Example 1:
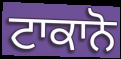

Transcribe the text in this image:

ਟਾਕਾਨੋ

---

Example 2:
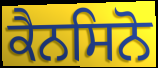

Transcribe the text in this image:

ਕੈਨਸਿਨੋ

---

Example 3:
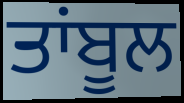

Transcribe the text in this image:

ਤਾਂਬੂਲ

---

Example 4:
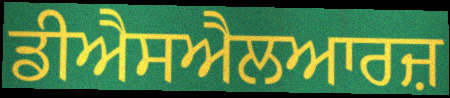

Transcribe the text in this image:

ਡੀਐਸਐਲਆਰਜ਼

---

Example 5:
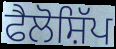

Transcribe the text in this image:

ਫੈਲੋਸ਼ਿੱਪ